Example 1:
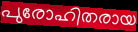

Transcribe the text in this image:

പുരോഹിതരായ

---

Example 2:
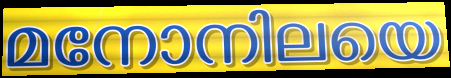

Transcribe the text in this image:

മനോനിലയെ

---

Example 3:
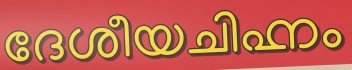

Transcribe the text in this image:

ദേശീയചിഹ്നം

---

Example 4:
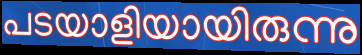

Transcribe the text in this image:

പടയാളിയായിരുന്നു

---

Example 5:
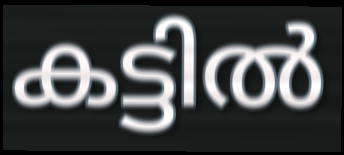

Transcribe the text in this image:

കട്ടിൽ